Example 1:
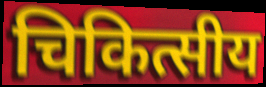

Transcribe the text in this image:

चिकित्सीय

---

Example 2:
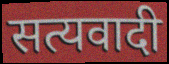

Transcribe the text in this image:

सत्यवादी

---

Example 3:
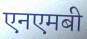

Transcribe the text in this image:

एनएमबी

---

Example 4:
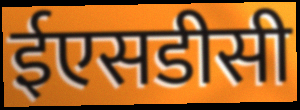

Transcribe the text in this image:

ईएसडीसी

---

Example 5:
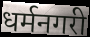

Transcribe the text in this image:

धर्मनगरी